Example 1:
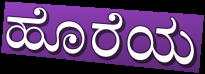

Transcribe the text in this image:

ಹೊರೆಯ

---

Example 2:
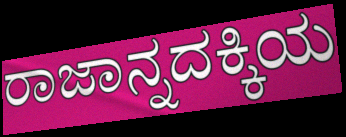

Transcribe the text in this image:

ರಾಜಾನ್ನದಕ್ಕಿಯ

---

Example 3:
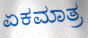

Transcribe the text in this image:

ಏಕಮಾತ್ರ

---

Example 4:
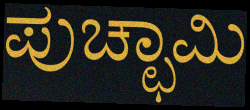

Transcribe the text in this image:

ಪುಚ್ಛಾಮಿ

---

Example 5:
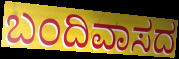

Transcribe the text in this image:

ಬಂದಿವಾಸದ